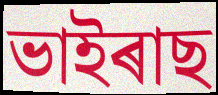
ভাইৰাছ